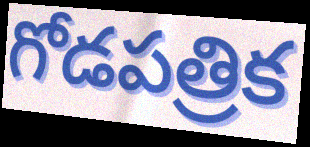
గోడపత్రిక